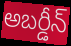
అబర్డీన్